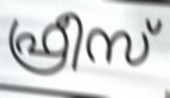
ഫ്രീസ്